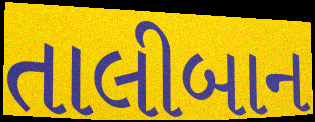
તાલીબાન